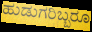
ಹುಡುಗರಿಬ್ಬರೂ